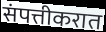
संपत्तीकरात